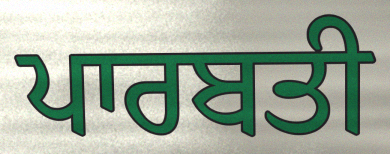
ਪਾਰਬਤੀ